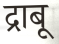
द्राबू